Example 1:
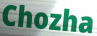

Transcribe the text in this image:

Chozha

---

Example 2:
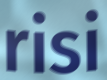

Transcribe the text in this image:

risi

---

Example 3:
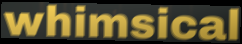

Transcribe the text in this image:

whimsical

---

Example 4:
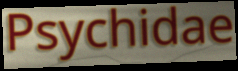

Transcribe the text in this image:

Psychidae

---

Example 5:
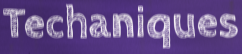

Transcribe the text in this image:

Techaniques